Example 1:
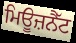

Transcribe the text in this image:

ਮਿਊਜ਼ਨੈੱਟ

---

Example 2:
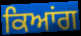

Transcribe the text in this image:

ਕਿਆਂਗ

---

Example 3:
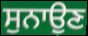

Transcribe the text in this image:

ਸੁਨਾਉਣ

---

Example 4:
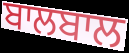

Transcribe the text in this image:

ਬਾਲਬਾਲ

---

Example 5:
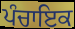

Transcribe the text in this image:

ਪੰਚਾਇਕ